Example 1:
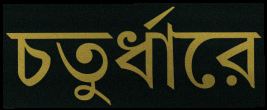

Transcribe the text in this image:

চতুর্ধারে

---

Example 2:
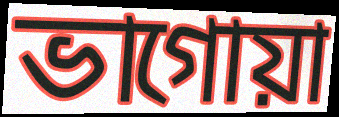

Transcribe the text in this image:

ভাগোয়া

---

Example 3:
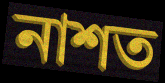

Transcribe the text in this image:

নাশত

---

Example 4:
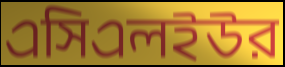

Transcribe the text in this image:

এসিএলইউর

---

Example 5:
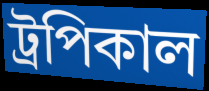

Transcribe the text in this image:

ট্রপিকাল